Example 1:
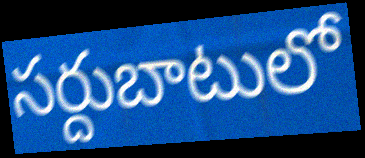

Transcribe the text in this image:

సర్దుబాటులో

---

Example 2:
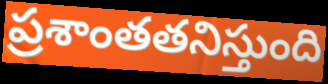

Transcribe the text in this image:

ప్రశాంతతనిస్తుంది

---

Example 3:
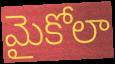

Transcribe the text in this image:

మైకోలా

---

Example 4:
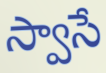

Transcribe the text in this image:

స్వాసే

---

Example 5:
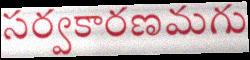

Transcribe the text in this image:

సర్వకారణమగు